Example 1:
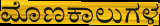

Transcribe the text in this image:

ಮೊಣಕಾಲುಗಳ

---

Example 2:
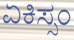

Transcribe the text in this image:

ಏಕಿಸ್ಸಂ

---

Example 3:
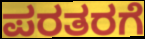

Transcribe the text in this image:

ಪರತರಗೆ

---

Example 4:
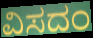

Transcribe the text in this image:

ವಿಸದಂ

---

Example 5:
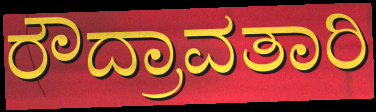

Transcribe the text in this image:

ರೌದ್ರಾವತಾರಿ